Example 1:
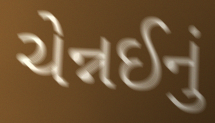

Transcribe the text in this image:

ચેન્નઈનું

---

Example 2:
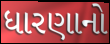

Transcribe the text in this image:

ધારણાનો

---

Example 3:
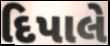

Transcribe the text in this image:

દિપાલે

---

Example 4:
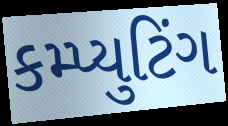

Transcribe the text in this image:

કમ્પ્યુટિંગ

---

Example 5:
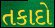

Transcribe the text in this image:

તકાદો